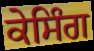
ਕੇਸਿੰਗ